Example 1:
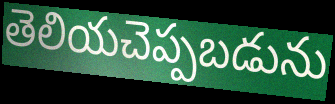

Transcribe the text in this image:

తెలియచెప్పబడును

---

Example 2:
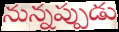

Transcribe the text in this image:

నున్నప్పుడు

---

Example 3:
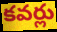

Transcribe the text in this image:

కవర్లు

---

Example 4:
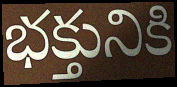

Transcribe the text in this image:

భక్తునికి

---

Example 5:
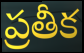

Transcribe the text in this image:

ప్రతీక